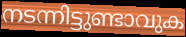
നടന്നിട്ടുണ്ടാവുക